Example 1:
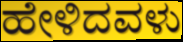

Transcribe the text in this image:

ಹೇಳಿದವಳು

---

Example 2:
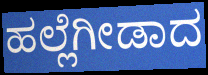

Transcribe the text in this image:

ಹಲ್ಲೆಗೀಡಾದ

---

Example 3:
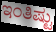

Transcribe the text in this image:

ಇಂತಿಷ್ಟು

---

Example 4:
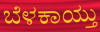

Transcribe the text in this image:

ಬೆಳಕಾಯ್ತು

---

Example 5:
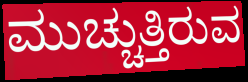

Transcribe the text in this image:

ಮುಚ್ಚುತ್ತಿರುವ